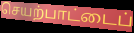
செயற்பாட்டைப்